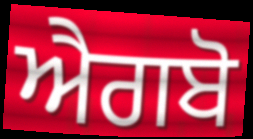
ਐਗਬੋ